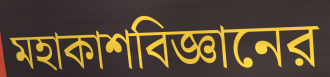
মহাকাশবিজ্ঞানের